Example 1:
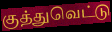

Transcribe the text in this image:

குத்துவெட்டு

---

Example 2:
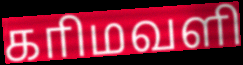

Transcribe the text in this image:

கரிமவளி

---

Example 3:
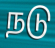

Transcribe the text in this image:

நடு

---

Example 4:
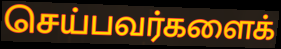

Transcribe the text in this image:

செய்பவர்களைக்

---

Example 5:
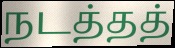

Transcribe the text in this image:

நடத்தத்